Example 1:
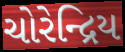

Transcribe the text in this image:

ચોરેન્દ્રિય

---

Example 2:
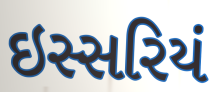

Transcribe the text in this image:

ઇસ્સરિયં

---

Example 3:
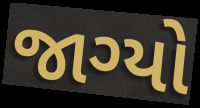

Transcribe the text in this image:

જાગ્યો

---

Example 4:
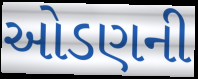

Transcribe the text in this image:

ઓડણની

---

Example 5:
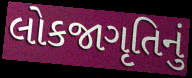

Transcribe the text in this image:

લોકજાગૃતિનું